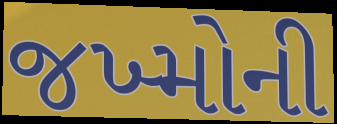
જખ્મોની